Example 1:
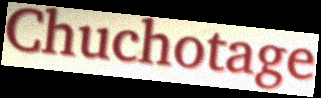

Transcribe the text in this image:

Chuchotage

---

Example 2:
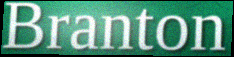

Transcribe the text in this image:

Branton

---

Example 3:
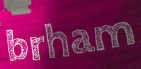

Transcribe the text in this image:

brham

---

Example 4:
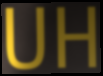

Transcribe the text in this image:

UH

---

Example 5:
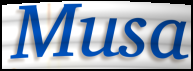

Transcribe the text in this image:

Musa